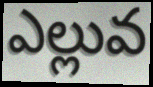
ఎల్లువ